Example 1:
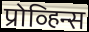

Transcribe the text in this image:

प्रोव्हिन्स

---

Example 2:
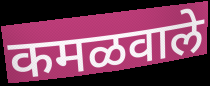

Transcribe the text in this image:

कमळवाले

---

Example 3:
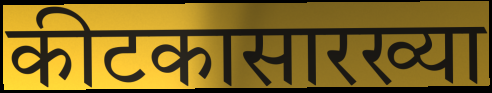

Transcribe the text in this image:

कीटकासारख्या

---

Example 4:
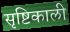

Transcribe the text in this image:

सृष्टिकाली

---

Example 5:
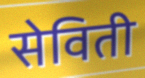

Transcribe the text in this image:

सेविती